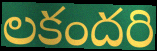
లకందరి